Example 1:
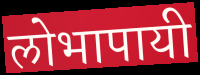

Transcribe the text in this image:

लोभापायी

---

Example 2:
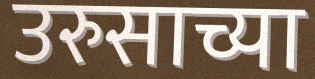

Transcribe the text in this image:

उरुसाच्या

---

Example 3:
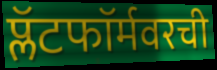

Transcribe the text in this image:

प्लॅटफॉर्मवरची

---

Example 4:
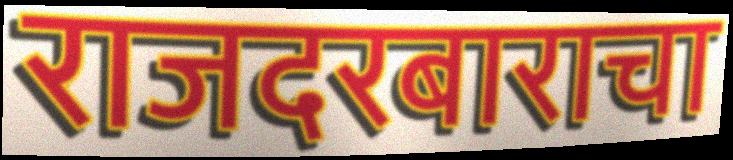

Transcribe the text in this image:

राजदरबाराचा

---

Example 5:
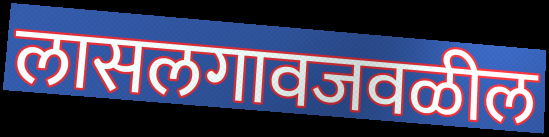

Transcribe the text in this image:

लासलगावजवळील